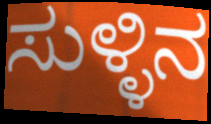
ಸುಳ್ಳಿನ